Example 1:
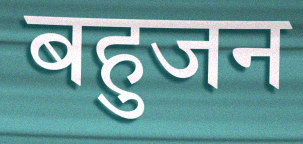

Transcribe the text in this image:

बहुजन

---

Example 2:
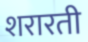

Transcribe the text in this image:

शरारती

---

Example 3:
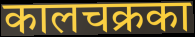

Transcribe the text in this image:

कालचक्रका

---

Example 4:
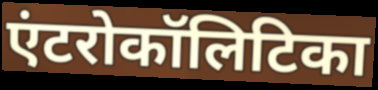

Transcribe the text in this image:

एंटरोकॉलिटिका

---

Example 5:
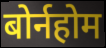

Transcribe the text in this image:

बोर्नहोम